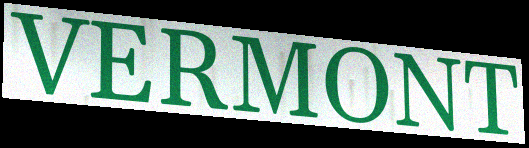
VERMONT